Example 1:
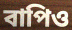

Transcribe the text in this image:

বাপিও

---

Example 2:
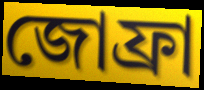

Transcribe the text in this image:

জোফ্রা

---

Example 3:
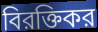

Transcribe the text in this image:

বিরক্তিকর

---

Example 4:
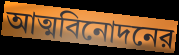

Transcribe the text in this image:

আত্মবিনোদনের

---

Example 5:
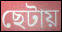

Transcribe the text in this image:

ছেটায়